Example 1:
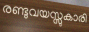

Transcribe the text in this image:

രണ്ടുവയസ്സുകാരി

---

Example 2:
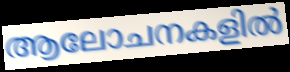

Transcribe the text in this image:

ആലോചനകളിൽ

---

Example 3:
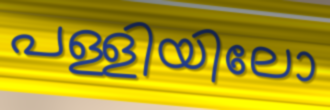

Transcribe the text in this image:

പള്ളിയിലോ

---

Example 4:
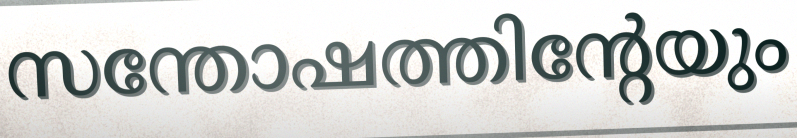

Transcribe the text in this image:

സന്തോഷത്തിന്റേയും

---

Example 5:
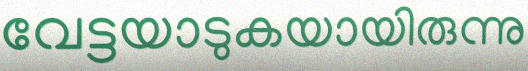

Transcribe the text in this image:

വേട്ടയാടുകയായിരുന്നു